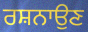
ਰਸ਼ਨਾਉਣ